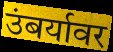
उंबर्यावर